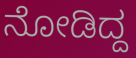
ನೋಡಿದ್ದ